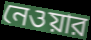
নেওয়ার